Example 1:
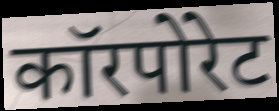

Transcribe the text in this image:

कॉरपोरेट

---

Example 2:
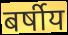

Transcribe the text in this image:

बर्षीय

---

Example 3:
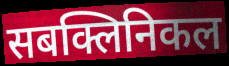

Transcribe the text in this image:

सबक्लिनिकल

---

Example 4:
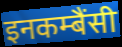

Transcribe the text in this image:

इनकम्बैंसी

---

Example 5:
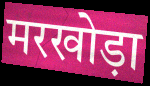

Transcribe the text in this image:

मरखोड़ा